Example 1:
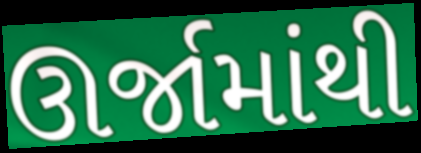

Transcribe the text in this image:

ઊર્જામાંથી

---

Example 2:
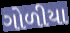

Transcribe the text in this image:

ગોળીયા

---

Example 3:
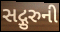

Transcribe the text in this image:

સદ્ગુરુની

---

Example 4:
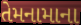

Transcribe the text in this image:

તેમનામાના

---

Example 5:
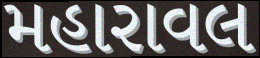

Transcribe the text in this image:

મહારાવલ